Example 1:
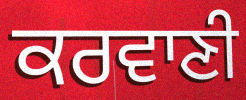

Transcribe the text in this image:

ਕਰਵਾਣੀ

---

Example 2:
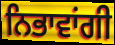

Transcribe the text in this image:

ਨਿਭਾਵਾਂਗੀ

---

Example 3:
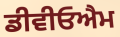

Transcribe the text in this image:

ਡੀਵੀਓਐਮ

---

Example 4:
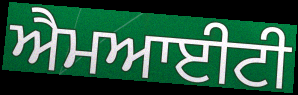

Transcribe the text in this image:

ਐਮਆਈਟੀ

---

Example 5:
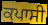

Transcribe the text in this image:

ਕਪਾਸੀ